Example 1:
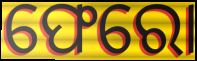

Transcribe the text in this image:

ଫେରୋ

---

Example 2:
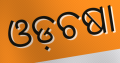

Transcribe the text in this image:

ଓଡ଼ଚଷା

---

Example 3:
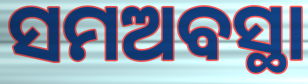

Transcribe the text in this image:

ସମଅବସ୍ଥା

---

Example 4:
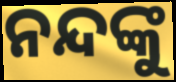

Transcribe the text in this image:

ନନ୍ଦଙ୍କୁ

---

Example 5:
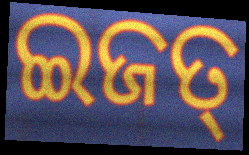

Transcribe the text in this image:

ଇଜତ୍